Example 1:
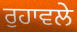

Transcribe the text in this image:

ਰੁਹਾਵਲੇ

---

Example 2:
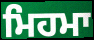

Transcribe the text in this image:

ਮਿਹਮਾ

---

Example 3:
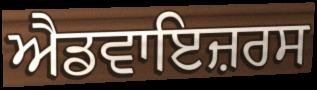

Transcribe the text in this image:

ਐਡਵਾਇਜ਼ਰਸ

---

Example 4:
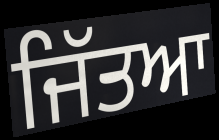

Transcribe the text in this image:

ਜਿੱਤਆ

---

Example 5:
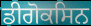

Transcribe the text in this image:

ਡੀਗੋਕਸਿਨ